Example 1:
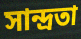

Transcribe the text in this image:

সান্দ্ৰতা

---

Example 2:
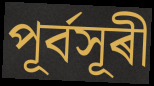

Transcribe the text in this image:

পূৰ্বসূৰী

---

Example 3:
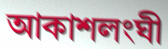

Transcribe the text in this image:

আকাশলংঘী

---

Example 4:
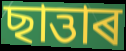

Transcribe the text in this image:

ছাত্তাৰ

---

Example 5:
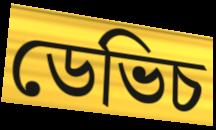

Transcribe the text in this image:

ডেভিচ